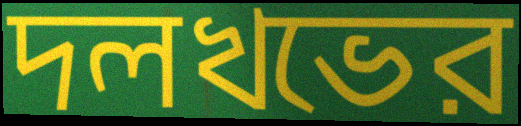
দলখভের